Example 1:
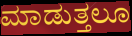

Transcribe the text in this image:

ಮಾಡುತ್ತಲೂ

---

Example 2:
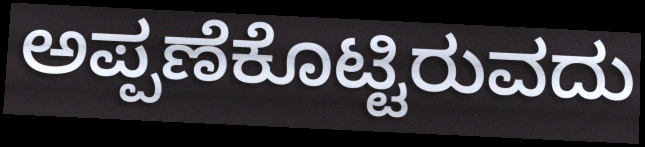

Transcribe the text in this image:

ಅಪ್ಪಣೆಕೊಟ್ಟಿರುವದು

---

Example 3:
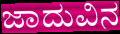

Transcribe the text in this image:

ಜಾದುವಿನ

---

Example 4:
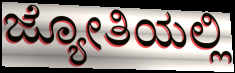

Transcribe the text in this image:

ಜ್ಯೋತಿಯಲ್ಲಿ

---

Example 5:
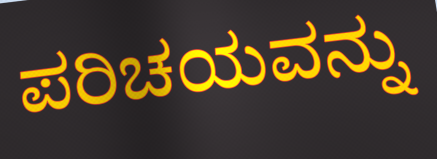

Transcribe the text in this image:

ಪರಿಚಯವನ್ನು